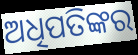
ଅଧିପତିଙ୍କର